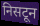
निसटून